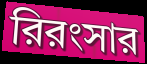
রিরংসার